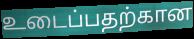
உடைப்பதற்கான